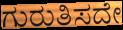
ಗುರುತಿಸದೇ